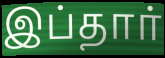
இப்தார்